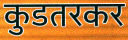
कुडतरकर